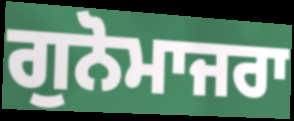
ਗੁਨੋਮਾਜਰਾ